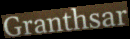
Granthsar